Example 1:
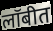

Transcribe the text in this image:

लॉबीत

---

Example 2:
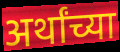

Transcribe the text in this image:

अर्थांच्या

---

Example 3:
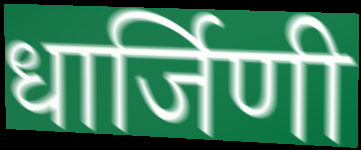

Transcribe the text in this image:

धार्जिणी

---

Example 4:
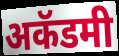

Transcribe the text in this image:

अकॅडमी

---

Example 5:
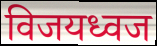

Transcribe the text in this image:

विजयध्वज